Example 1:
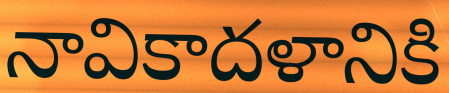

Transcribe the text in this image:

నావికాదళానికి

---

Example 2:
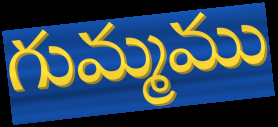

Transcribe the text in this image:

గుమ్మము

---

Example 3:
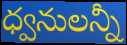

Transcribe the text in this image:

ధ్వనులన్నీ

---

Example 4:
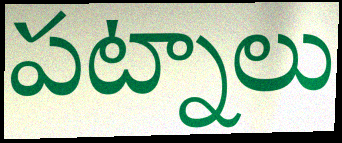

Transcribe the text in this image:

పట్నాలు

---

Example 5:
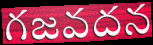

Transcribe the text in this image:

గజవదన